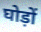
घोड़ों